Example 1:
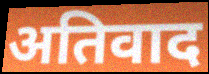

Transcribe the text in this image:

अतिवाद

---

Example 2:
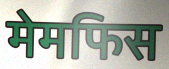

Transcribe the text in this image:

मेमफिस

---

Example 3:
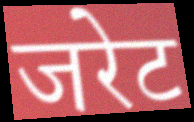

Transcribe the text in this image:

जरेट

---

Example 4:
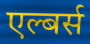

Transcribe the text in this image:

एल्बर्स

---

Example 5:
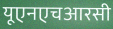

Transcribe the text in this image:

यूएनएचआरसी